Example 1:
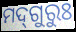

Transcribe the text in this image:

ମଦ୍‌ଗୁରୁଃ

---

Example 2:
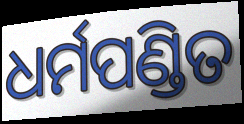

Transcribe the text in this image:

ଧର୍ମପଣ୍ଡିତ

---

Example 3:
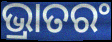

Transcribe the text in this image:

ଭ୍ରାତରଂ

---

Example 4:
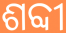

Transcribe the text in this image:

ଶବ୍ଦୀ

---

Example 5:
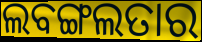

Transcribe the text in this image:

ଲବଙ୍ଗଲତାର